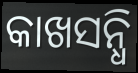
କାଖସନ୍ଧି